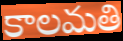
కాలమతి